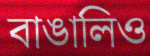
বাঙালিও